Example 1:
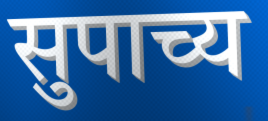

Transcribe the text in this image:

सुपाच्य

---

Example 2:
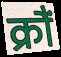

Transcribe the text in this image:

क्रौं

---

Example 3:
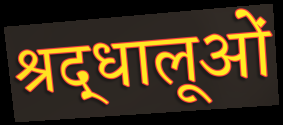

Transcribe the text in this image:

श्रद्धालूओं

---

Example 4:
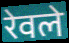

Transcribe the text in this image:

रेवले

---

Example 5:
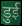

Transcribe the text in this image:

डुई